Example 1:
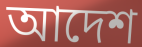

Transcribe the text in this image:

আদেশ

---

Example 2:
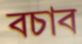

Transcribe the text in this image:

বচাব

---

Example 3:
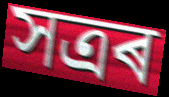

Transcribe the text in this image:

সত্ৰৰ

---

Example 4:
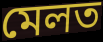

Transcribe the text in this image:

মেলত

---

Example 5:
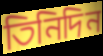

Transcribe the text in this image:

তিনিদিন